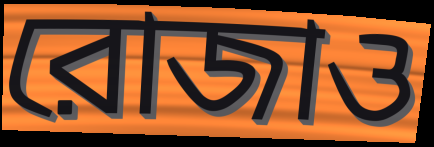
রোজাও